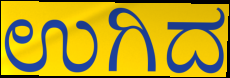
ಉಗಿದ